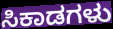
ಸಿಕಾಡಗಳು